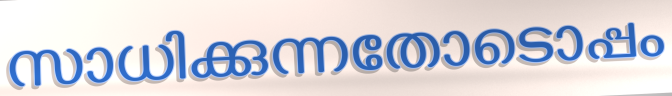
സാധിക്കുന്നതോടൊപ്പം